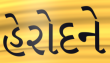
હેરોદને